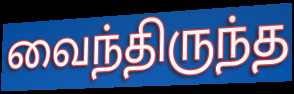
வைந்திருந்த